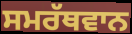
ਸਮਰੱਥਵਾਨ